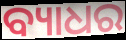
ବ୍ୟାଧର